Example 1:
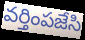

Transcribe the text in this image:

వర్తింపజేసి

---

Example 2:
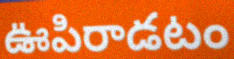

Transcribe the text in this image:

ఊపిరాడటం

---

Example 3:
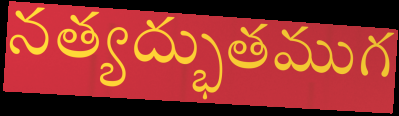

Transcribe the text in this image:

నత్యద్భుతముగ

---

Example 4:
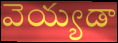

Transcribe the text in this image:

వెయ్యడా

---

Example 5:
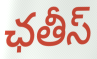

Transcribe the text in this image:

ఛతీస్